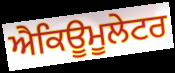
ਐਕਿਊਮੂਲੇਟਰ